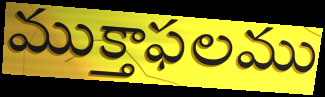
ముక్తాఫలము